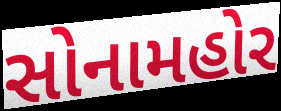
સોનામહોર